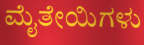
ಮೈತೇಯಿಗಳು